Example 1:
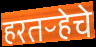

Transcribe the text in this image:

हरतऱ्हेचे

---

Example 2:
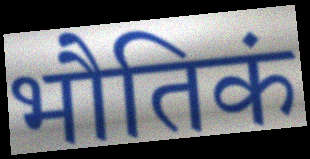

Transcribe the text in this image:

भौतिकं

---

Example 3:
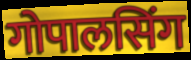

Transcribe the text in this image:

गोपालसिंग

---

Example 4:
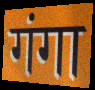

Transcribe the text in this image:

गंगा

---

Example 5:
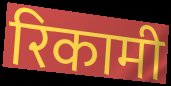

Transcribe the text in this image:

रिकामी